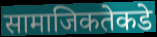
सामाजिकतेकडे